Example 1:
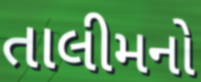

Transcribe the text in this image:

તાલીમનો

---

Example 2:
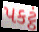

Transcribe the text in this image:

પકટ્ઠં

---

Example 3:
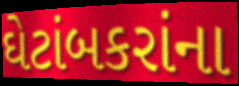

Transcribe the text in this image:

ઘેટાંબકરાંના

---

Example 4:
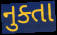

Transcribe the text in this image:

નુક્તા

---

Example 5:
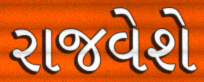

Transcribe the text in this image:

રાજવેશે